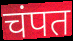
चंपत